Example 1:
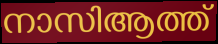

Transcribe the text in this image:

നാസിആത്ത്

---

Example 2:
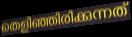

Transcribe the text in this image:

തെളിഞ്ഞിരിക്കുന്നത്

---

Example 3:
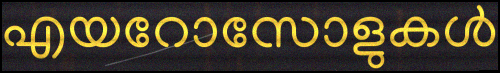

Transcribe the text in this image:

എയറോസോളുകൾ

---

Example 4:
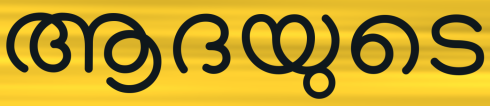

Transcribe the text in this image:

ആദയുടെ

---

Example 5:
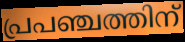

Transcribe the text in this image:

പ്രപഞ്ചത്തിന്